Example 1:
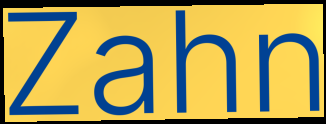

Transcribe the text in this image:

Zahn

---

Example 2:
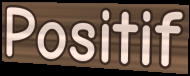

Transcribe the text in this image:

Positif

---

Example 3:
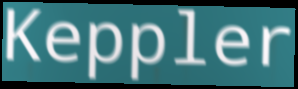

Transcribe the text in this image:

Keppler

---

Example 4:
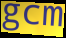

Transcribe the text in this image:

gcm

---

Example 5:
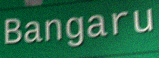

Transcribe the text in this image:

Bangaru